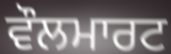
ਵੌਲਮਾਰਟ